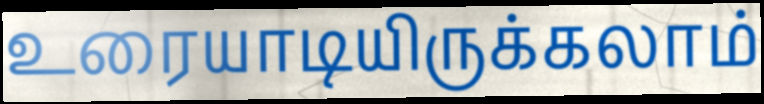
உரையாடியிருக்கலாம்